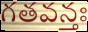
గతవన్తః